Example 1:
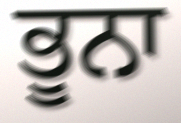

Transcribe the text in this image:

ਭੂਨਾ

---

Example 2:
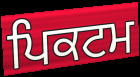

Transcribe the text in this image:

ਪਿਕਟਮ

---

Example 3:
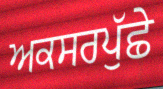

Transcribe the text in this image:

ਅਕਸਰਪੁੱਛੇ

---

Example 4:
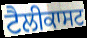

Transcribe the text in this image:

ਟੈਲੀਕਾਸਟ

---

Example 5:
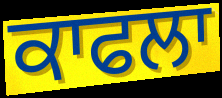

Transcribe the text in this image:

ਕਾਫਲਾ